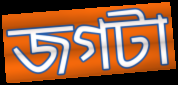
জগটা